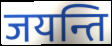
जयन्ति